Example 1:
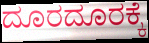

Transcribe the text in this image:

ದೂರದೂರಕ್ಕೆ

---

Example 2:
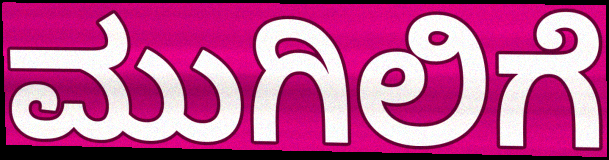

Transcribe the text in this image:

ಮುಗಿಲಿಗೆ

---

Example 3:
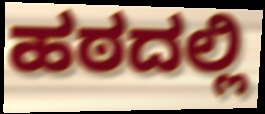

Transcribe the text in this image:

ಹಠದಲ್ಲಿ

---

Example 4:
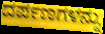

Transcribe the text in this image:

ದರ್ಪಣಗಳನ್ನು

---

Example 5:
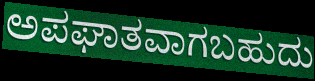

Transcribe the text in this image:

ಅಪಘಾತವಾಗಬಹುದು